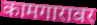
कामगारावर